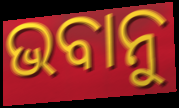
ଭବାନୁ